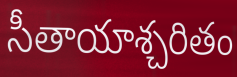
సీతాయాశ్చరితం